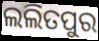
ଲଲିତପୁର